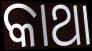
କାଥା